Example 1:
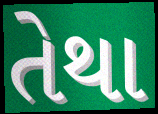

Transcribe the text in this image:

તેથા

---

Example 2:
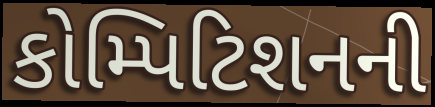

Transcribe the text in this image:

કોમ્પિટિશનની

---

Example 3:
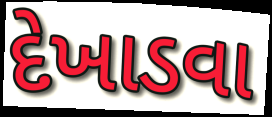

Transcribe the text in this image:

દેખાડવા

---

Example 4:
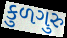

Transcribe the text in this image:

કુળગુરુ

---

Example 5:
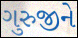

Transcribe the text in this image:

ગુરુજીને